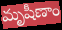
మృషీణాం